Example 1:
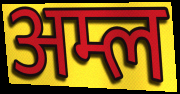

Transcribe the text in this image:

अम्ल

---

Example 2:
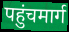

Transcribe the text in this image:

पहुंचमार्ग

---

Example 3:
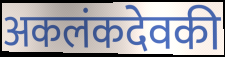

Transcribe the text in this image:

अकलंकदेवकी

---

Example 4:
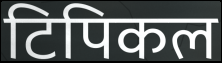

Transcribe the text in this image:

टिपिकल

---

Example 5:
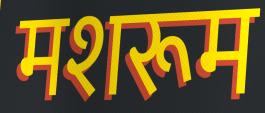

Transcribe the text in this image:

मशरूम